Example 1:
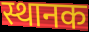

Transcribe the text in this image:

स्थानक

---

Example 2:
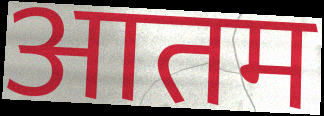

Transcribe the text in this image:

आतम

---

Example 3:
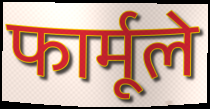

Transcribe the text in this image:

फार्मूले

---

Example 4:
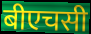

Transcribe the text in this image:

बीएचसी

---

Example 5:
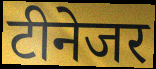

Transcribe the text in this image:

टीनेजर